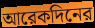
আরেকদিনের